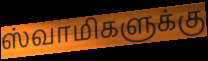
ஸ்வாமிகளுக்கு